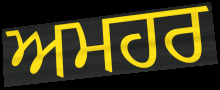
ਅਮਹਰ